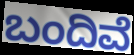
ಬಂದಿವೆ